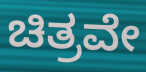
ಚಿತ್ರವೇ